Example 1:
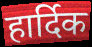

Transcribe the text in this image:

हार्दिक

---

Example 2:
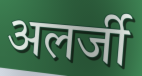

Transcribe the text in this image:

अलर्जी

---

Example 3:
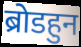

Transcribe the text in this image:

ब्रोडहुन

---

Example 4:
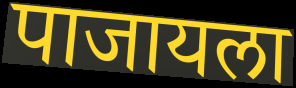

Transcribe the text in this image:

पाजायला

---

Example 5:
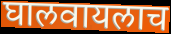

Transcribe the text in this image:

घालवायलाच